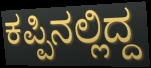
ಕಪ್ಪಿನಲ್ಲಿದ್ದ